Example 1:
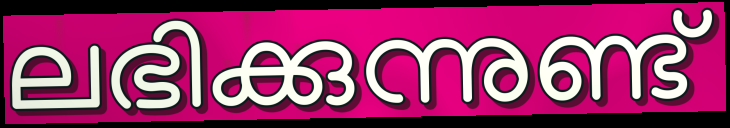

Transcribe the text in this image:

ലഭിക്കുന്നുണ്ട്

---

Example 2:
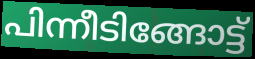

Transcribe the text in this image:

പിന്നീടിങ്ങോട്ട്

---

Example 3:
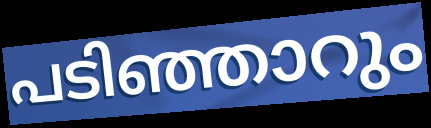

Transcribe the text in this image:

പടിഞ്ഞാറും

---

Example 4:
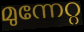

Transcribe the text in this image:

മുന്നേറ്റ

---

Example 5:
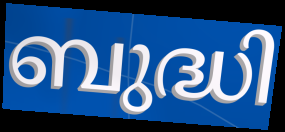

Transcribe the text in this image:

ബുദ്ധി